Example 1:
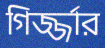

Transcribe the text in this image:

গির্জ্জার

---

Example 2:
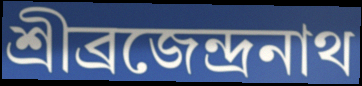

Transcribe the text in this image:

শ্রীব্রজেন্দ্রনাথ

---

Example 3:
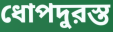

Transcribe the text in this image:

ধোপদুরস্ত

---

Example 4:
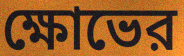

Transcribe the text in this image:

ক্ষোভের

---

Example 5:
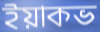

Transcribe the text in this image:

ইয়াকভ